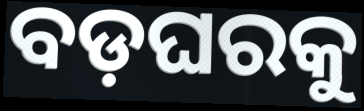
ବଡ଼ଘରକୁ